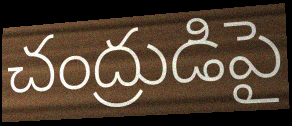
చంద్రుడిపై